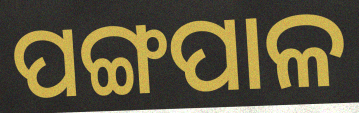
ପଙ୍ଗପାଳ